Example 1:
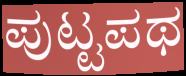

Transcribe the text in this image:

ಪುಟ್ಟಪಥ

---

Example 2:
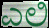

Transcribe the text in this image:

ಎಲಿ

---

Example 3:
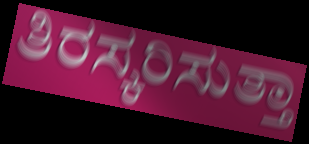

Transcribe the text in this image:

ತಿರಸ್ಕರಿಸುತ್ತಾ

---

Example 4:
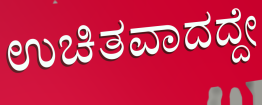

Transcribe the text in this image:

ಉಚಿತವಾದದ್ದೇ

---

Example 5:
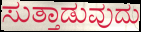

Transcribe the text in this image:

ಸುತ್ತಾಡುವುದು